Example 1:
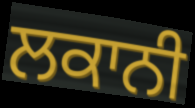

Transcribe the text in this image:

ਲਕਾਨੀ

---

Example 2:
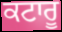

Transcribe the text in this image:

ਕਟਾਰੂ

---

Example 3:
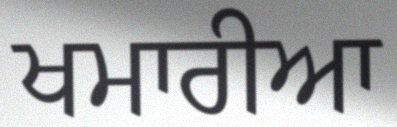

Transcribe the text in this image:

ਖਮਾਰੀਆ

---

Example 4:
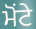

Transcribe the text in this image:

ਮੋਂਟੇ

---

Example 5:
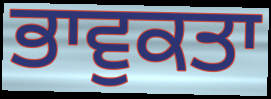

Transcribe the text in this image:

ਭਾਵੁਕਤਾ